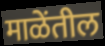
माळेंतील